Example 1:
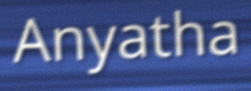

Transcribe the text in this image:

Anyatha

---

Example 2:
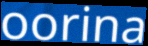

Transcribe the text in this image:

oorina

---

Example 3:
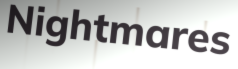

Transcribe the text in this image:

Nightmares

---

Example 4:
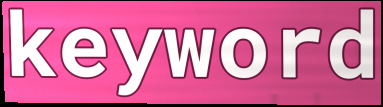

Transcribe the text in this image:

keyword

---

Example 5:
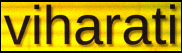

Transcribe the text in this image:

viharati